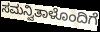
ಸಮನ್ವಿತಾಳೊಂದಿಗೆ